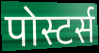
पोस्टर्स